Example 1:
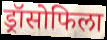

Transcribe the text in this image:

ड्रॉसोफिला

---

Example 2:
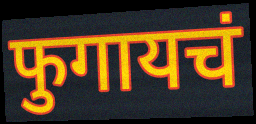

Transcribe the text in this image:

फुगायचं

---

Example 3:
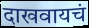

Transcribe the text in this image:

दाखवायचं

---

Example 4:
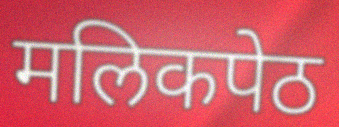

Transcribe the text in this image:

मलिकपेठ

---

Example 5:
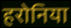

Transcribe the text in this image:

हरोनिया